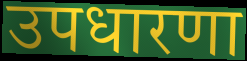
उपधारणा